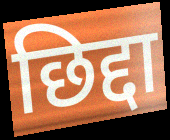
छिद्दा